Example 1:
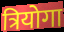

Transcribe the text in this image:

त्रियोगा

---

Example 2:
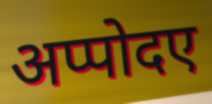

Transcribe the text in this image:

अप्पोदए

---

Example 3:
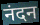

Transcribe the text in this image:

नंदन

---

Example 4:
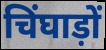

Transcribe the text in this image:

चिंघाड़ों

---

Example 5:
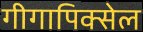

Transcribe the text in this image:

गीगापिक्सेल